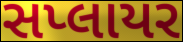
સપ્લાયર